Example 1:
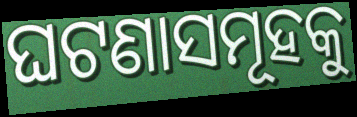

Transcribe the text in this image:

ଘଟଣାସମୂହକୁ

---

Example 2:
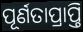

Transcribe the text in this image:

ପୂର୍ଣତାପ୍ରାପ୍ତି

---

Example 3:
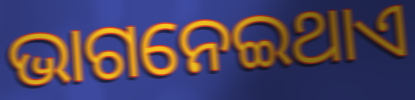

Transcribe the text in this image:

ଭାଗନେଇଥାଏ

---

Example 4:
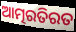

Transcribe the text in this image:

ଆତ୍ମରତିରତ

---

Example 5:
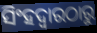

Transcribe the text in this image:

ସିଂହଦ୍ୱାରଠାରୁ